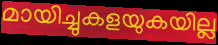
മായിച്ചുകളയുകയില്ല